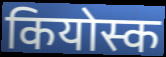
कियोस्क